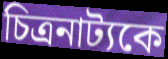
চিত্রনাট্যকে